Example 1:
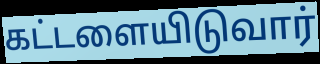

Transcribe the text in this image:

கட்டளையிடுவார்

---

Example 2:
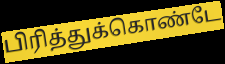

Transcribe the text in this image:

பிரித்துக்கொண்டே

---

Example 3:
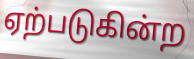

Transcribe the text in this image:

ஏற்படுகின்ற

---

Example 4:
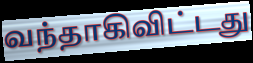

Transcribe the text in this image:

வந்தாகிவிட்டது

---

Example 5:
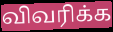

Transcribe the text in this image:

விவரிக்க